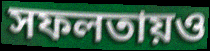
সফলতায়ও